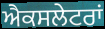
ਐਕਸਲੇਟਰਾਂ